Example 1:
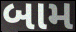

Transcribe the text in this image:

બામ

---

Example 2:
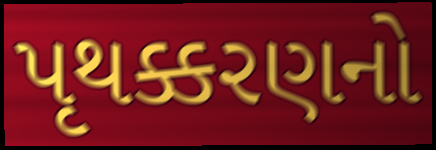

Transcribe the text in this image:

પૃથક્કરણનો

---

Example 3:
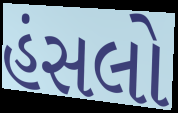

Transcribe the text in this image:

હંસલો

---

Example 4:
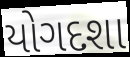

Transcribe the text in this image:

યોગદશા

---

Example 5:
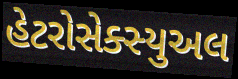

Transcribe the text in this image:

હેટરોસેક્સ્યુઅલ